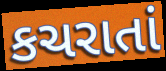
કચરાતાં